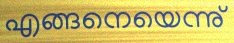
എങ്ങനെയെന്നു്